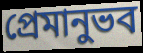
প্রেমানুভব